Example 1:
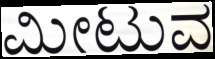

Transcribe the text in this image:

ಮೀಟುವ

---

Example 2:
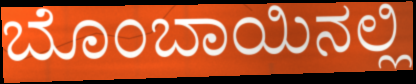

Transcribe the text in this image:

ಬೊಂಬಾಯಿನಲ್ಲಿ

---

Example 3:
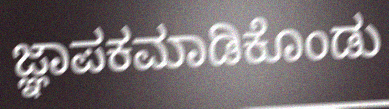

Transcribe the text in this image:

ಜ್ಞಾಪಕಮಾಡಿಕೊಂಡು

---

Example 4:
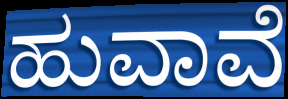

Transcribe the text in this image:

ಹುವಾವೆ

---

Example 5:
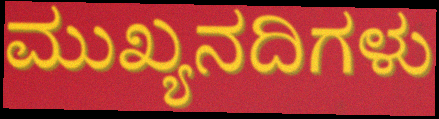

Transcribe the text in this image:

ಮುಖ್ಯನದಿಗಳು